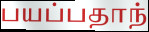
பயப்பதாந்